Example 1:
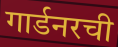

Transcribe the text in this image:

गार्डनरची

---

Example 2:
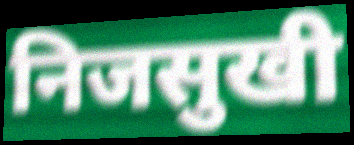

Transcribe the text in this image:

निजसुखी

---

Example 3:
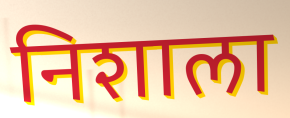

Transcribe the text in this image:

निशाला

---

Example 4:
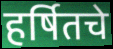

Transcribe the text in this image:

हर्षितचे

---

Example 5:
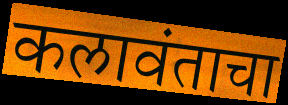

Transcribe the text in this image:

कलावंताचा